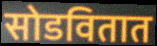
सोडवितात